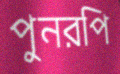
পুনরপি